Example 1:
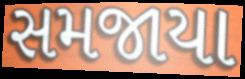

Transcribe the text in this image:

સમજાયા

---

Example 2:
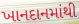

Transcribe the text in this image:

ખાનદાનમાંથી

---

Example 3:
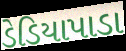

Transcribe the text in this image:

ડેડિયાપાડા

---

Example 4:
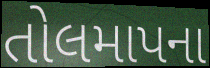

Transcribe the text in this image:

તોલમાપના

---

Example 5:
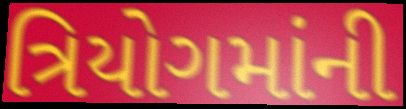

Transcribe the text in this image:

ત્રિયોગમાંની